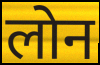
लोन